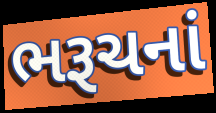
ભરૂચનાં